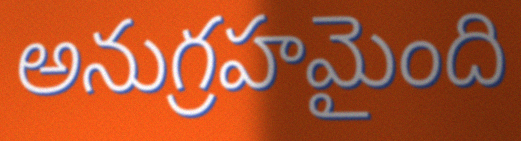
అనుగ్రహమైంది